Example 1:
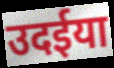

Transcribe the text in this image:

उदईया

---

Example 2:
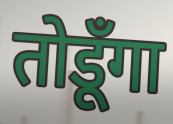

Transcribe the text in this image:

तोडूँगा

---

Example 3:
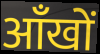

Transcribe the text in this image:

आँखों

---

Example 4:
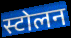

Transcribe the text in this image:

स्टोलन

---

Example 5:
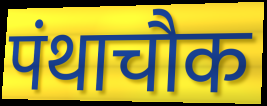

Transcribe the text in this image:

पंथाचौक